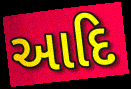
આદિ